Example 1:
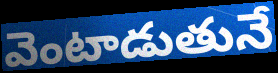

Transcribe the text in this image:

వెంటాడుతునే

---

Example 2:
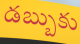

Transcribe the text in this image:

డబ్బుకు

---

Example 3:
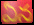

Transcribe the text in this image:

ఏన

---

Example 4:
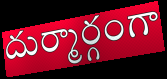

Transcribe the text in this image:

దుర్మార్గంగా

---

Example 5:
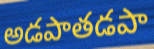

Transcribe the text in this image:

అడపాతడపా